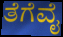
ತೆಗೆವೈ